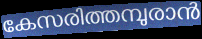
കേസരിത്തമ്പുരാൻ